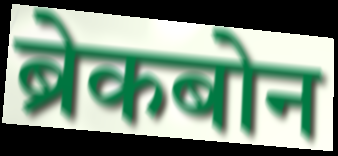
ब्रेकबोन